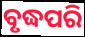
ବୃଦ୍ଧପରି